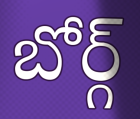
బోర్గ్